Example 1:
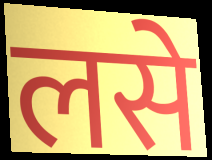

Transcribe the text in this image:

लसे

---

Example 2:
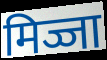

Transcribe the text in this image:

मिज्जा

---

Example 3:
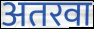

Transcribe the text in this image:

अतरवा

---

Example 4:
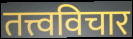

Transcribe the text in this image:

तत्त्वविचार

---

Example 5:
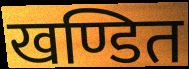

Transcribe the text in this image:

खण्डित